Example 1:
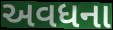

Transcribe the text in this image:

અવધના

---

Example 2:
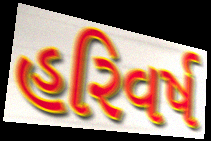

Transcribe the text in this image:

હરિવર્ષ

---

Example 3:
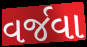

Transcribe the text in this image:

વર્જવા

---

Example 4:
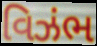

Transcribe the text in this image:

વિઝંભ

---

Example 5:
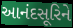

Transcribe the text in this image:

આનંદસૂરિને